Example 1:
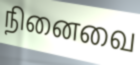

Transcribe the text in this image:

நினைவை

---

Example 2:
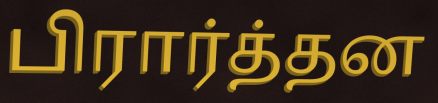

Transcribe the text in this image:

பிரார்த்தன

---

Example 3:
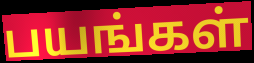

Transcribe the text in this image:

பயங்கள்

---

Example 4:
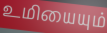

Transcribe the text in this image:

உமியையும்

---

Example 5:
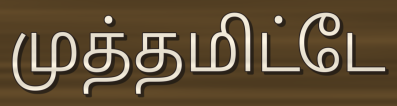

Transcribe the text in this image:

முத்தமிட்டே